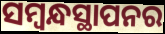
ସମ୍ବନ୍ଧସ୍ଥାପନର